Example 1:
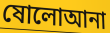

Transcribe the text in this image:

ষোলোআনা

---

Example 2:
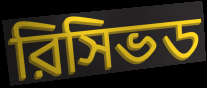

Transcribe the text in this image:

রিসিভড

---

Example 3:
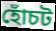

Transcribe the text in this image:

হোঁচট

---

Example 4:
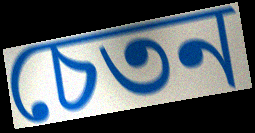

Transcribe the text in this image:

চেতন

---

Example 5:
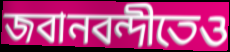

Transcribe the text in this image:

জবানবন্দীতেও